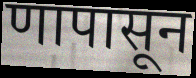
णापासून